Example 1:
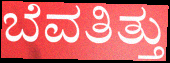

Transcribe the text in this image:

ಬೆವತಿತ್ತು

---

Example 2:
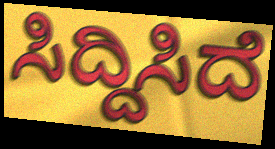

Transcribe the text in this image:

ಸಿದ್ದಿಸಿದೆ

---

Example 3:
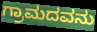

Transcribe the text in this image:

ಗ್ರಾಮದವನು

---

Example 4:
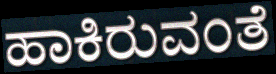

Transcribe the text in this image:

ಹಾಕಿರುವಂತೆ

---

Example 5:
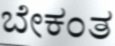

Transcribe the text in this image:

ಬೇಕಂತ